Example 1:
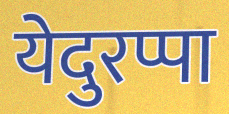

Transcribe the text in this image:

येदुरप्पा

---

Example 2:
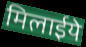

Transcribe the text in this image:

मिलाईये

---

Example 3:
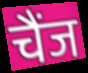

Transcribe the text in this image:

चैंज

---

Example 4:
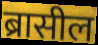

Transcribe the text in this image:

ब्रासील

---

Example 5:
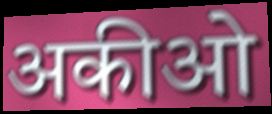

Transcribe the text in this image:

अकीओ